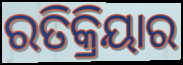
ରତିକ୍ରିୟାର